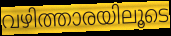
വഴിത്താരയിലൂടെ